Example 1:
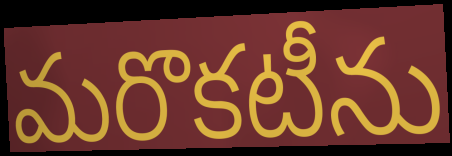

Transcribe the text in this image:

మరొకటీను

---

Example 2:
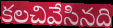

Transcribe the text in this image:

కలచివేసినది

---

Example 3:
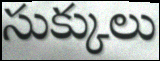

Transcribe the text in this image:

సుక్కులు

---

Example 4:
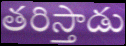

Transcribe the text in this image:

తరిస్తాడు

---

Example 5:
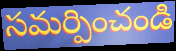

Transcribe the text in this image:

సమర్పించండి